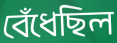
বেঁধেছিল